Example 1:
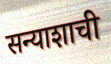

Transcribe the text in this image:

सन्याशाची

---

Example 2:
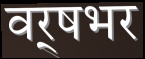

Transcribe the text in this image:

वर्षभर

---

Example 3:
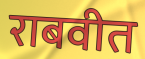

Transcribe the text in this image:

राबवीत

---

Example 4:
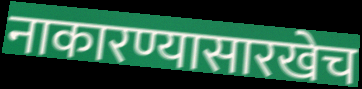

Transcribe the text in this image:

नाकारण्यासारखेच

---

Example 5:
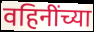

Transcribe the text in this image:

वहिनींच्या